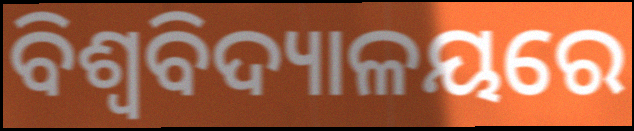
ବିଶ୍ୱବିଦ୍ୟାଳୟରେ